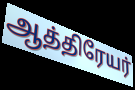
ஆத்திரேயர்